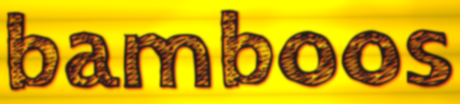
bamboos